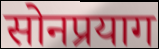
सोनप्रयाग